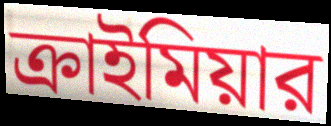
ক্রাইমিয়ার